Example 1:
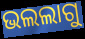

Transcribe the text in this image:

ଭଲଲାଗୁ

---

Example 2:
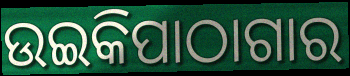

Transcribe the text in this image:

ଉଇକିପାଠାଗାର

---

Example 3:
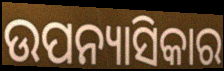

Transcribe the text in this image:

ଉପନ୍ୟାସିକାର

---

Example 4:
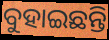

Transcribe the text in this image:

ବୁହାଇଛନ୍ତି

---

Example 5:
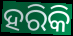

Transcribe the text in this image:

ହରିକି